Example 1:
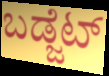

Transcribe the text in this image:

ಬಡ್ಜೆಟ್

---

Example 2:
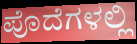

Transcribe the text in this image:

ಪೊದೆಗಳಲ್ಲಿ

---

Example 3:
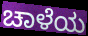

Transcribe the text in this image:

ಚಾಳೆಯ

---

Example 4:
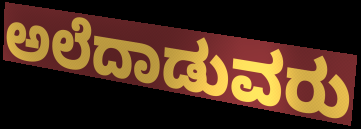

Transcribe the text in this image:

ಅಲೆದಾಡುವರು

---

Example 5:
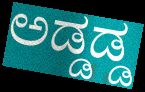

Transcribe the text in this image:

ಅಡ್ಡಡ್ಡ